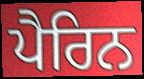
ਪੈਰਿਨ